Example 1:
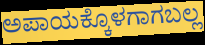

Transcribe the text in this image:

ಅಪಾಯಕ್ಕೊಳಗಾಗಬಲ್ಲ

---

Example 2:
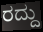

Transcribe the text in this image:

ರದ್ದು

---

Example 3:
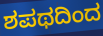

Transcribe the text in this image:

ಶಪಥದಿಂದ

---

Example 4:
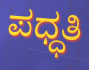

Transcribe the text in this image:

ಪಧ್ಧತಿ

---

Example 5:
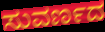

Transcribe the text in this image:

ಸುವರ್ಣದ